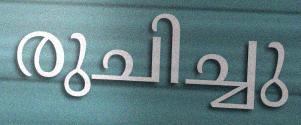
രുചിച്ചു